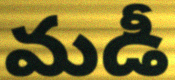
మడీ